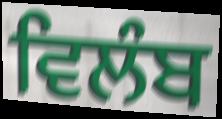
ਵਿਲੰਬ